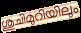
ശുചിമുറിയിലും